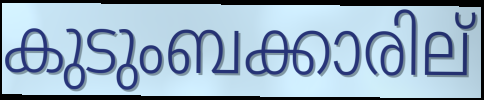
കുടുംബക്കാരില്